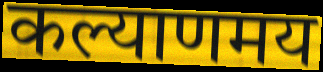
कल्याणमय